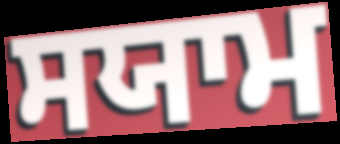
ਸਯਾਮ